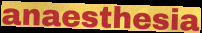
anaesthesia